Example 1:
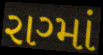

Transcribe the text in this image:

રાગ્માં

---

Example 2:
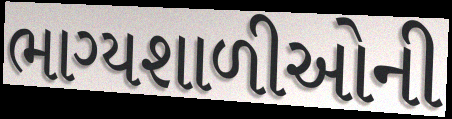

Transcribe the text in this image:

ભાગ્યશાળીઓની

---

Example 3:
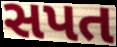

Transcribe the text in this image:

સપત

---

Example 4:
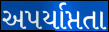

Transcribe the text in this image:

અપર્યાપ્તતા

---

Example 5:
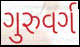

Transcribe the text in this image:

ગુરુવર્ગ